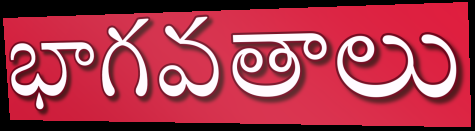
భాగవతాలు